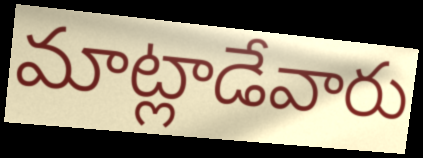
మాట్లాడేవారు